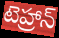
టెహ్రాన్